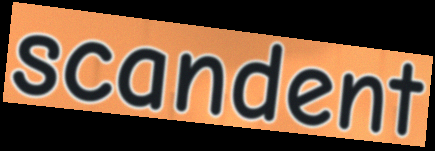
scandent